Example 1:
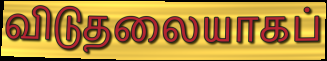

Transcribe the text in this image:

விடுதலையாகப்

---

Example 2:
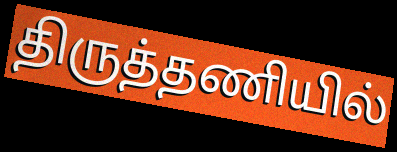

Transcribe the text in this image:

திருத்தணியில்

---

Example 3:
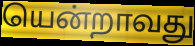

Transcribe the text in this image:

யென்றாவது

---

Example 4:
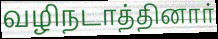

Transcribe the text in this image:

வழிநடாத்தினார்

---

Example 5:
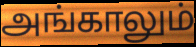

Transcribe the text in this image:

அங்காலும்